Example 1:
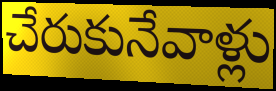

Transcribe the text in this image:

చేరుకునేవాళ్లు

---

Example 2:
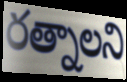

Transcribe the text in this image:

రత్నాలని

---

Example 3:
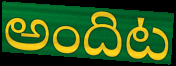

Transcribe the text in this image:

అందిట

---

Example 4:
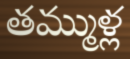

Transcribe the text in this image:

తమ్ముళ్ల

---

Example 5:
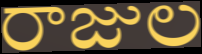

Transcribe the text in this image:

రాజుల